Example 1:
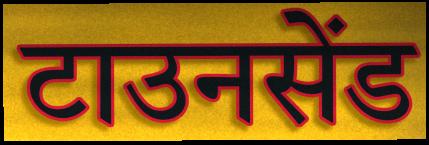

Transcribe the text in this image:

टाउनसेंड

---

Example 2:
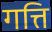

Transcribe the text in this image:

गत्ति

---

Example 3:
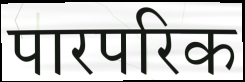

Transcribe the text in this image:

पारपरिक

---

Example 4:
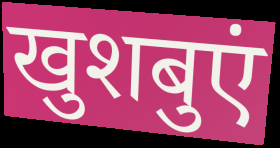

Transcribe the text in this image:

खुशबुएं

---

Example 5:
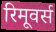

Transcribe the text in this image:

रिमूवर्स